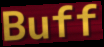
Buff